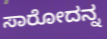
ಸಾರೋದನ್ನ